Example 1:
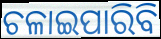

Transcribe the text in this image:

ଚଳାଇପାରିବି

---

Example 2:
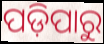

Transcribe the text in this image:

ପଡ଼ିପାରୁ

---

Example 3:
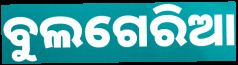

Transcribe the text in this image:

ବୁଲଗେରିଆ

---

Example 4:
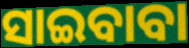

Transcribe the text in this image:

ସାଇବାବା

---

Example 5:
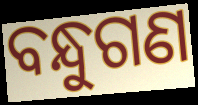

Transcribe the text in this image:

ବନ୍ଧୁଗଣ